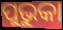
ପୁଭୁକା